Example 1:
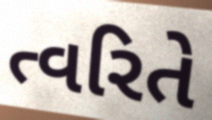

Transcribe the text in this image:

ત્વરિતે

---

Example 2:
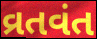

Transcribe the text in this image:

વ્રતવંત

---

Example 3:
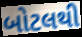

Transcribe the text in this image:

બોટલથી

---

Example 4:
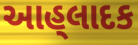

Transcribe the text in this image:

આહ્‌લાદક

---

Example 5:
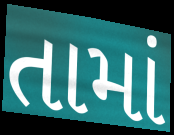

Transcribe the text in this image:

તામાં